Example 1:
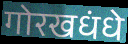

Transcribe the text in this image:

गोरखधंधे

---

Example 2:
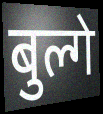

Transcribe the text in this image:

बुल्गे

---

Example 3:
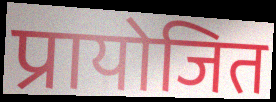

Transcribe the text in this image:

प्रायोजित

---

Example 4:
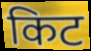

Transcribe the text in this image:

किट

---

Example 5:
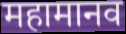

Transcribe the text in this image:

महामानव